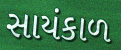
સાયંકાળ